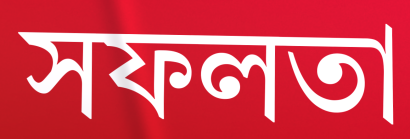
সফলতা